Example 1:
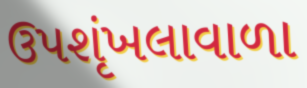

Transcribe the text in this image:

ઉપશૃંખલાવાળા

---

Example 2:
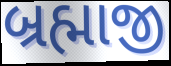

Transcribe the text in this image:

બ્રહ્માજી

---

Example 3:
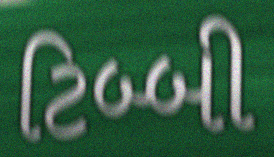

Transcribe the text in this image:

ટિબ્બી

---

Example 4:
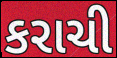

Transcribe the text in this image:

કરાચી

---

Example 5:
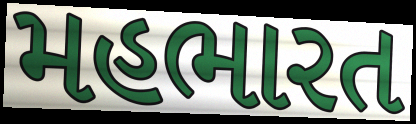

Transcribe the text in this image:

મહભારત